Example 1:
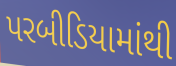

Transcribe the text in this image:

પરબીડિયામાંથી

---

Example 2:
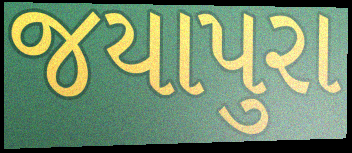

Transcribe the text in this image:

જયાપુરા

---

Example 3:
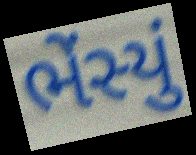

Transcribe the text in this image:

ભેંસ્યું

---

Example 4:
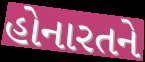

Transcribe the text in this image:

હોનારતને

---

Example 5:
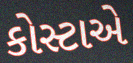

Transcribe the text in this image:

કોસ્ટાએ